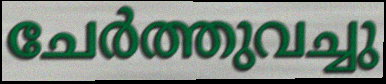
ചേർത്തുവച്ചു